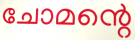
ചോമന്റെ